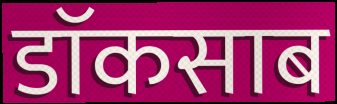
डॉकसाब